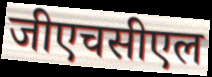
जीएचसीएल